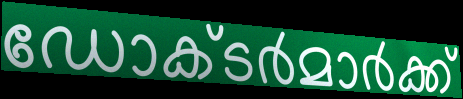
ഡോക്ടർമാർക്ക്